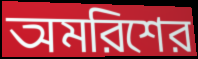
অমরিশের